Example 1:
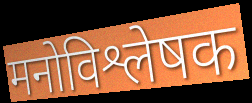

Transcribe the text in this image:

मनोविश्लेषक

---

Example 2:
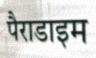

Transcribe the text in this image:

पैराडाइम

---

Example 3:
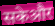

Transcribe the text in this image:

सकेऔर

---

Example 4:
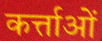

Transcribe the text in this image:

कर्त्ताओं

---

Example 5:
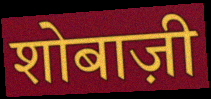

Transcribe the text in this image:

शोबाज़ी